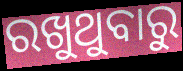
ରଖୁଥୁବାରୁ